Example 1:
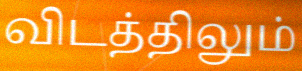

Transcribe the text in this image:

விடத்திலும்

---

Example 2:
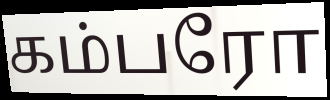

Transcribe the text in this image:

கம்பரோ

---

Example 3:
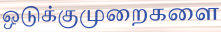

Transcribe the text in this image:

ஒடுக்குமுறைகளை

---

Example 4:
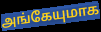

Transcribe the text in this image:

அங்கேயுமாக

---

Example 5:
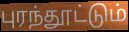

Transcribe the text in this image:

புரந்தூட்டும்